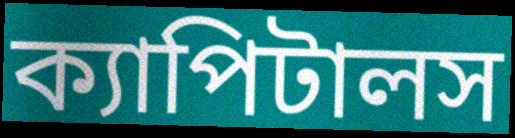
ক্যাপিটালস